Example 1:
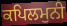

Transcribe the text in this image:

ਕਪਿਲਮੁਨੀ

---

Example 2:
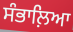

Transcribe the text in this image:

ਸੰਭਾਲ਼ਿਆ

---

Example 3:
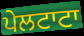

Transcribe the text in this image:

ਪੇਲਟਾਟਾ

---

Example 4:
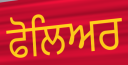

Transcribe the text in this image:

ਫੋਲਿਅਰ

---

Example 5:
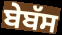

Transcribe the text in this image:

ਬੇਬੱਸ